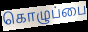
கொழுப்பை